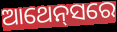
ଆଥେନ୍‍ସରେ